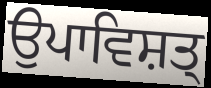
ਉਪਾਵਿਸ਼ਤ੍